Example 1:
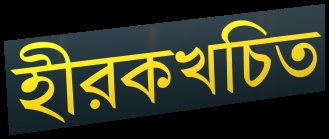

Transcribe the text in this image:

হীরকখচিত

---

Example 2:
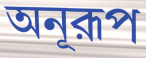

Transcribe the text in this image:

অনূরূপ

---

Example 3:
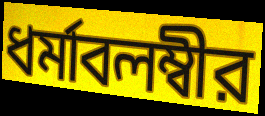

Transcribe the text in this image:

ধর্মাবলম্বীর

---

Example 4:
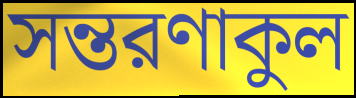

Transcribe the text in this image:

সন্তরণাকুল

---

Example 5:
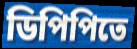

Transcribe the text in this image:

ডিপিপিতে